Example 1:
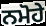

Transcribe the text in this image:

ਨਮੋਹੇ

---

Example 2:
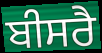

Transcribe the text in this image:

ਬੀਸਰੈ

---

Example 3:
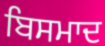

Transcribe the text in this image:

ਬਿਸਮਾਦ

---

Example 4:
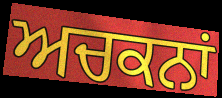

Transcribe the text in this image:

ਅਚਕਨਾਂ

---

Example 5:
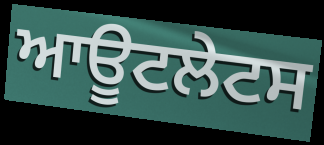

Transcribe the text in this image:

ਆਊਟਲੇਟਸ